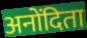
अनोंदिता